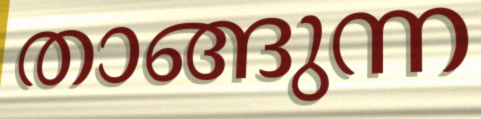
താങ്ങുന്ന